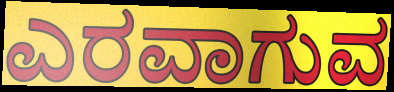
ಎರವಾಗುವ